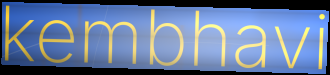
kembhavi